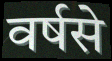
वर्षसे